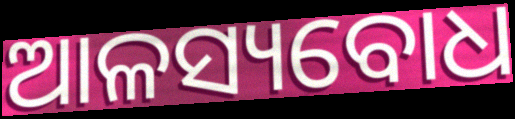
ଆଳସ୍ୟବୋଧ